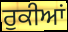
ਰੁਕੀਆਂ